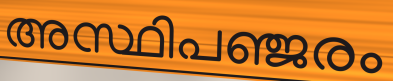
അസ്ഥിപഞ്ജരം